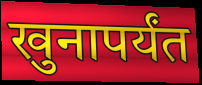
खुनापर्यंत